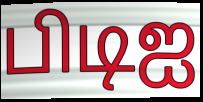
பிடிஐ